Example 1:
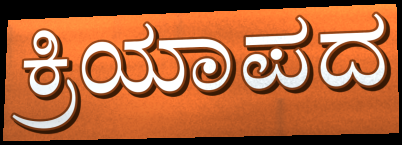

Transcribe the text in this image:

ಕ್ರಿಯಾಪದ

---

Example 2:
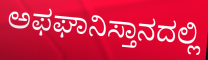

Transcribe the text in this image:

ಅಫಘಾನಿಸ್ತಾನದಲ್ಲಿ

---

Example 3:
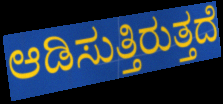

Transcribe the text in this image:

ಆಡಿಸುತ್ತಿರುತ್ತದೆ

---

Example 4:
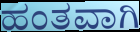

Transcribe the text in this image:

ಹಂತವಾಗಿ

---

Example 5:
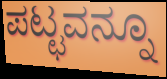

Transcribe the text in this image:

ಪಟ್ಟವನ್ನೂ